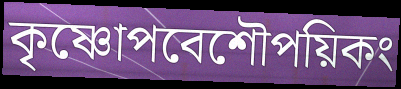
কৃষ্ণোপবেশৌপয়িকং